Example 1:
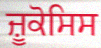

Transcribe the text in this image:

ਜ਼ੂਕੋਸਿਸ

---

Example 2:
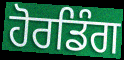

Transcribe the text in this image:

ਹੋਰਡਿੰਗ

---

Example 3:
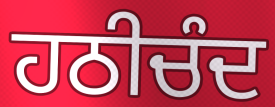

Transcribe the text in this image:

ਹਠੀਚੰਦ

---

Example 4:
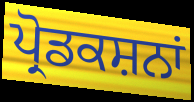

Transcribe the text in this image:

ਪ੍ਰੋਡਕਸ਼ਨਾਂ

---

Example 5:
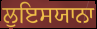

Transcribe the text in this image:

ਲੁਇਸਯਾਨਾ